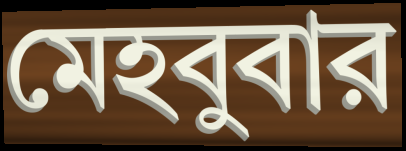
মেহবুবার